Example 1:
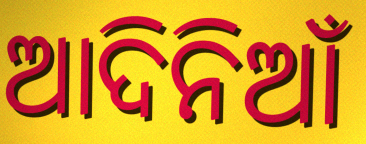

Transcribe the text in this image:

ଆଦିନିଆଁ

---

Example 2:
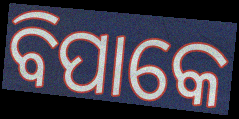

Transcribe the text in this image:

ବିପାକେ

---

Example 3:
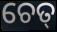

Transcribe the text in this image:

ଚେତ୍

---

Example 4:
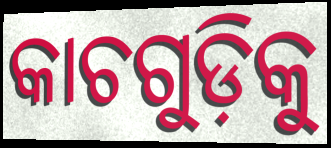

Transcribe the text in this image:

କାଚଗୁଡ଼ିକୁ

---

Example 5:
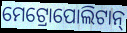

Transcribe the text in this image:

ମେଟ୍ରୋପୋଲିଟାନ୍